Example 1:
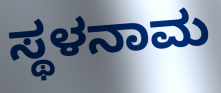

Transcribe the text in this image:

ಸ್ಥಳನಾಮ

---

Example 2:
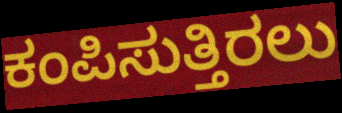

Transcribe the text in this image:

ಕಂಪಿಸುತ್ತಿರಲು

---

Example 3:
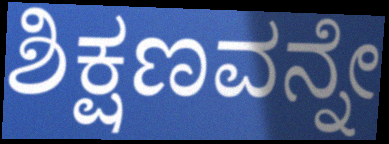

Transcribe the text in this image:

ಶಿಕ್ಷಣವನ್ನೇ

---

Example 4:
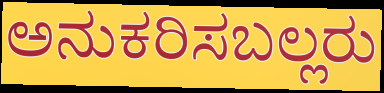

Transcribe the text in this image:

ಅನುಕರಿಸಬಲ್ಲರು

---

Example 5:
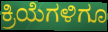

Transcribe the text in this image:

ಕ್ರಿಯೆಗಳಿಗೂ